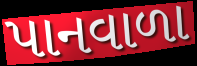
પાનવાળા